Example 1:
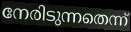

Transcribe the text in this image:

നേരിടുന്നതെന്ന്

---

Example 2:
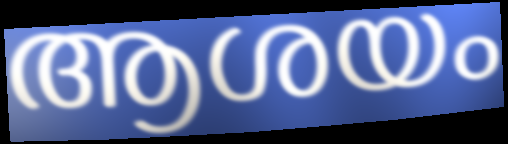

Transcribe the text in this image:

ആശയം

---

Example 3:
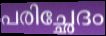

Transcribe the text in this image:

പരിച്ഛേദം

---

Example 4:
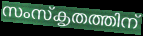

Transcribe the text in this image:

സംസ്‌കൃതത്തിന്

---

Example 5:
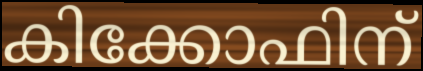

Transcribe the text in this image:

കിക്കോഫിന്